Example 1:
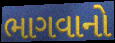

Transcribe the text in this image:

ભાગવાનો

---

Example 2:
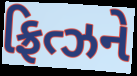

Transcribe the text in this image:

ફ્રિત્ઝને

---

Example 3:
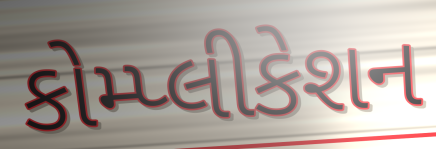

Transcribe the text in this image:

કોમ્પ્લીકેશન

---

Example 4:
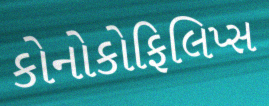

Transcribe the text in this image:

કોનોકોફિલિપ્સ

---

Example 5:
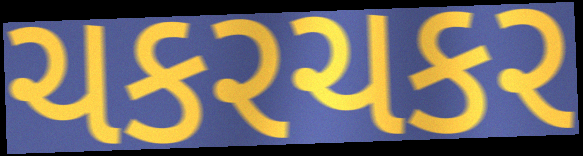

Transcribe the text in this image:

ચકરચકર